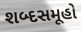
શબ્દસમૂહો